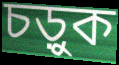
চড়ুক